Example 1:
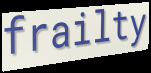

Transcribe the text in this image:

frailty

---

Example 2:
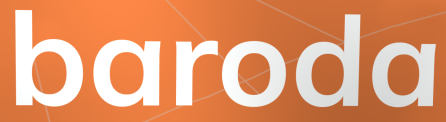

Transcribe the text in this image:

baroda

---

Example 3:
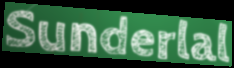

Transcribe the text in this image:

Sunderlal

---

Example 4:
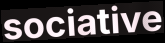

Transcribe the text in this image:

sociative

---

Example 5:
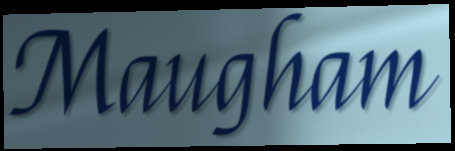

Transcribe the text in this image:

Maugham